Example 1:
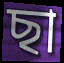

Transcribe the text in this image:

ছা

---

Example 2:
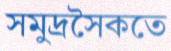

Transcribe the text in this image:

সমুদ্রসৈকতে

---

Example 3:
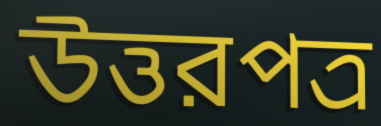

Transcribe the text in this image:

উত্তরপত্র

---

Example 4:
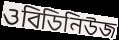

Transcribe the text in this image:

ওবিডিনিউজ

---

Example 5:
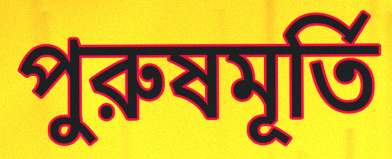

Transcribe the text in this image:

পুরুষমূর্তি